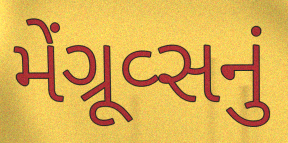
મેંગ્રૂવ્સનું